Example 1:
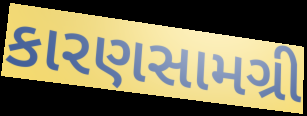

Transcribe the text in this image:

કારણસામગ્રી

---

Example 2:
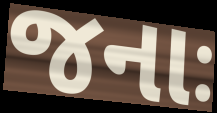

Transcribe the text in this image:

જનાઃ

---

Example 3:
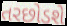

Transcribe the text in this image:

તરછોડશે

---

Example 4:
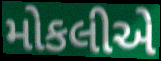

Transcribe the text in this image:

મોકલીએ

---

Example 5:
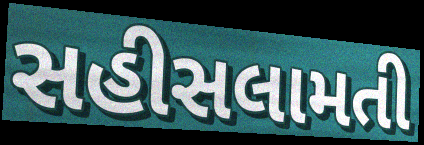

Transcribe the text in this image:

સહીસલામતી